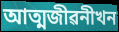
আত্মজীৱনীখন